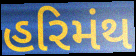
હરિમંથ